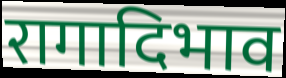
रागादिभाव